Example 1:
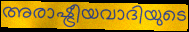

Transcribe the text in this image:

അരാഷ്ട്രീയവാദിയുടെ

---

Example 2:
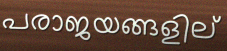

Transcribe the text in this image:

പരാജയങ്ങളില്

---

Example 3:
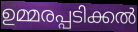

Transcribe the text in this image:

ഉമ്മരപ്പടിക്കൽ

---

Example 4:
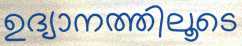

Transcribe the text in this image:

ഉദ്യാനത്തിലൂടെ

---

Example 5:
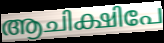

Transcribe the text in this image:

ആചിക്ഷിപേ